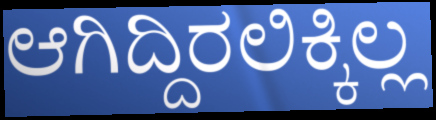
ಆಗಿದ್ದಿರಲಿಕ್ಕಿಲ್ಲ